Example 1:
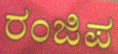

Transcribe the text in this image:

ರಂಜಿಪ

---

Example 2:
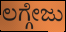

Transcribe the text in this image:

ಲಗ್ಗೇಜು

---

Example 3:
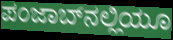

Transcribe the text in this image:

ಪಂಜಾಬ್‌ನಲ್ಲಿಯೂ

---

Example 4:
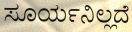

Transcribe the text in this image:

ಸೂರ್ಯನಿಲ್ಲದೆ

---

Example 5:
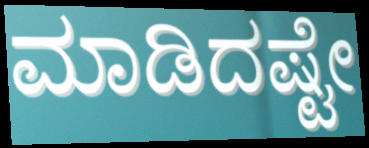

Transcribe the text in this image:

ಮಾಡಿದಷ್ಟೇ